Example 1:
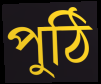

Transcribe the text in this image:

পুঠি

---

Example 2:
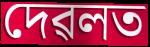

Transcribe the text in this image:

দেৱলত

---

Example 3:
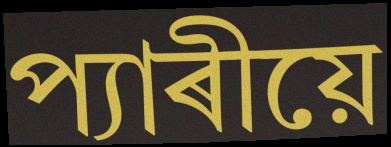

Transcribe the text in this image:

প্যাৰীয়ে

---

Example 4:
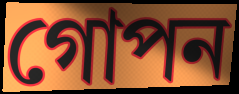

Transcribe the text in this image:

গোপন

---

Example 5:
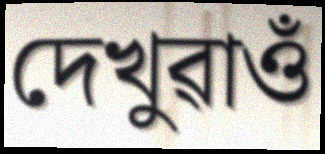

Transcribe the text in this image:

দেখুৱাওঁ